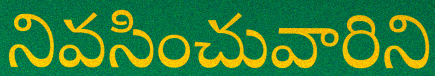
నివసించువారిని